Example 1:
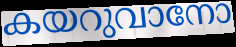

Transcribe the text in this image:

കയറുവാനോ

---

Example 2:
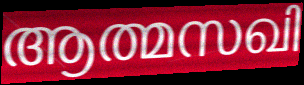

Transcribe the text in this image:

ആത്മസഖി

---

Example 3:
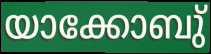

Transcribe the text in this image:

യാക്കോബു്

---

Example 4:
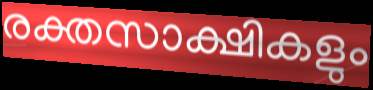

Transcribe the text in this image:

രക്തസാക്ഷികളും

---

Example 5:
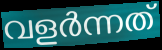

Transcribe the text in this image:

വളർന്നത്